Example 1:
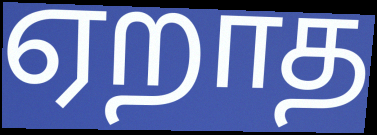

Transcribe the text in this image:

ஏறாத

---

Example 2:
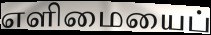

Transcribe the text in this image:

எளிமையைப்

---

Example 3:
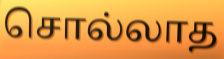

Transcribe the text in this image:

சொல்லாத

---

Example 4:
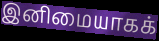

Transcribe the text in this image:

இனிமையாகக்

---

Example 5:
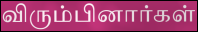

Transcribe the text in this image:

விரும்பினார்கள்